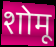
शोमू